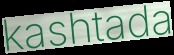
kashtada